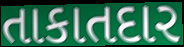
તાકાતદાર